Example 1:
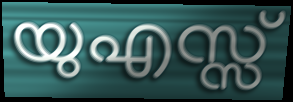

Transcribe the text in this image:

യുഎസ്സ്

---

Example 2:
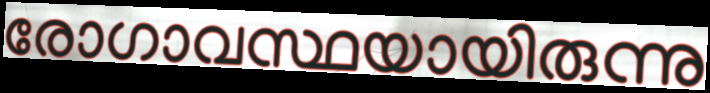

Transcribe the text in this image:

രോഗാവസ്ഥയായിരുന്നു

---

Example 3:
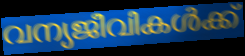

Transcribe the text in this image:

വന്യജീവികൾക്ക്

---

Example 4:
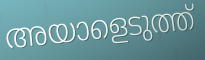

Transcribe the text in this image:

അയാളെടുത്ത്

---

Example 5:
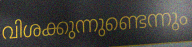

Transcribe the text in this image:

വിശക്കുന്നുണ്ടെന്നും